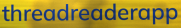
threadreaderapp